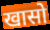
खासो